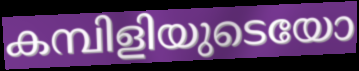
കമ്പിളിയുടെയോ